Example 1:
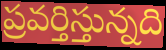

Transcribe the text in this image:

ప్రవర్తిస్తున్నది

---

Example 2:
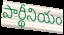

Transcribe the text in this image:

పార్థీనియం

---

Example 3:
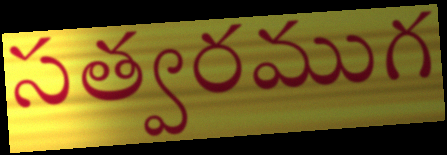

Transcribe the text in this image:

సత్వరముగ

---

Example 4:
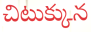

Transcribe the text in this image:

చిటుక్కున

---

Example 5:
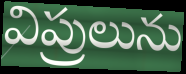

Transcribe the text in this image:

విప్రులును